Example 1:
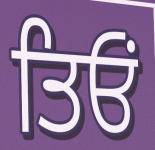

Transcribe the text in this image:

ਤਿਓਂ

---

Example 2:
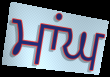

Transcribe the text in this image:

ਮਾਂਘ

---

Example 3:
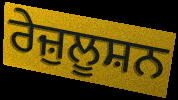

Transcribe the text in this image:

ਰੇਜ਼ੁਲੂਸ਼ਨ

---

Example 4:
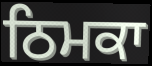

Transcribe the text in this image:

ਠਿਮਕਾ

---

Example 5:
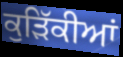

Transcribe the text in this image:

ਕੁੜਿੱਕੀਆਂ